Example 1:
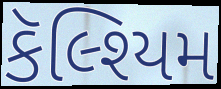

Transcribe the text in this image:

કૅલ્શ્યિમ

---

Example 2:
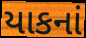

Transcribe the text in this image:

યાકનાં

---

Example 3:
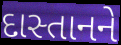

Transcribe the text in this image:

દાસ્તાનને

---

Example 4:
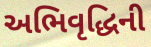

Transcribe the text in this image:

અભિવૃદ્ધિની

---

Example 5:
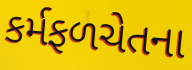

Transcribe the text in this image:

કર્મફળચેતના